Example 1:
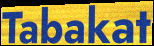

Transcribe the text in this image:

Tabakat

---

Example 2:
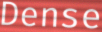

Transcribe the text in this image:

Dense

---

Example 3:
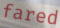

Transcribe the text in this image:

fared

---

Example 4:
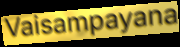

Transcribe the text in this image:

Vaisampayana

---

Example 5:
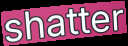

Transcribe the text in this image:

shatter